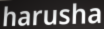
harusha